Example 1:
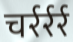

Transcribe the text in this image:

चर्रर्रर्र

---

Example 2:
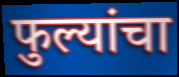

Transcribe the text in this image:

फुल्यांचा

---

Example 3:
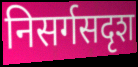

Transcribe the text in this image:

निसर्गसदृश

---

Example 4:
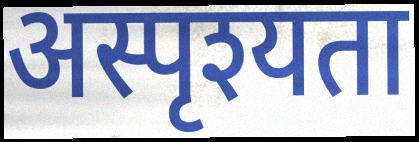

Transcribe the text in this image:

अस्पृश्यता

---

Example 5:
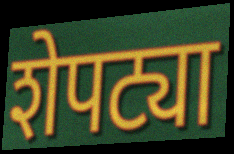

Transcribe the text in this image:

शेपट्या